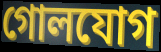
গোলযোগ